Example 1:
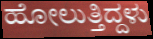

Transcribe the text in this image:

ಹೋಲುತ್ತಿದ್ದಳು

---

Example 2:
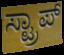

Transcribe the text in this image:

ಸ್ಟ್ರಾಪ್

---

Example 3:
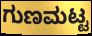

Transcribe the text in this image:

ಗುಣಮಟ್ಟ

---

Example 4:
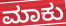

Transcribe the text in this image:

ಮಾಕು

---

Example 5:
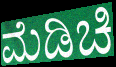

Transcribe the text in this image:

ಮೆಡಿಚಿ